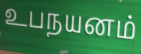
உபநயனம்